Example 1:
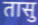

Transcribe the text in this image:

तासु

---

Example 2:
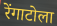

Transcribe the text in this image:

रेंगाटोला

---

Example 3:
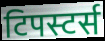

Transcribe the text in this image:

टिपस्टर्स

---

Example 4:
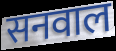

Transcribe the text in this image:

सनवाल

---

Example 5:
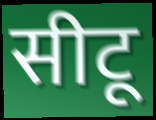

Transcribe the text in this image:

सीटू